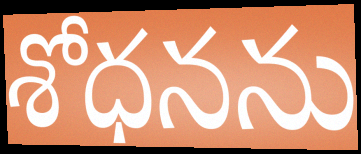
శోధనను